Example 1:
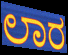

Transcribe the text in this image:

ಲಾರ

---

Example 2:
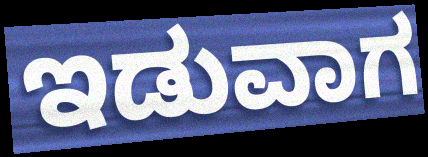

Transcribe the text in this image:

ಇಡುವಾಗ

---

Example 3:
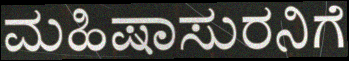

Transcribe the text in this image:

ಮಹಿಷಾಸುರನಿಗೆ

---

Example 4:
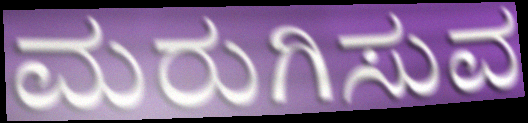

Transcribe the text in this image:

ಮರುಗಿಸುವ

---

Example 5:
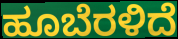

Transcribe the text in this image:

ಹೂಬೆರಳಿದೆ